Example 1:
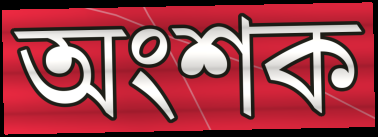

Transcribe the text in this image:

অংশক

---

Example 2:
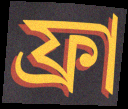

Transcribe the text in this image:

ফ্ৰা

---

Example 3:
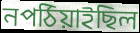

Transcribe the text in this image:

নপঠিয়াইছিল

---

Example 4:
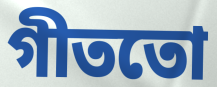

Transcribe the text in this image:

গীততো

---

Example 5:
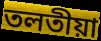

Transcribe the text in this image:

তলতীয়া